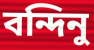
বন্দিনু